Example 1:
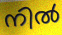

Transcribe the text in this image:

നിൽ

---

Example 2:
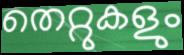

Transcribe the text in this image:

തെറ്റുകളും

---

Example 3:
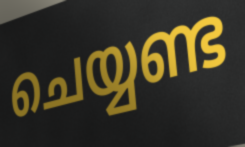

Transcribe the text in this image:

ചെയ്യണ്ട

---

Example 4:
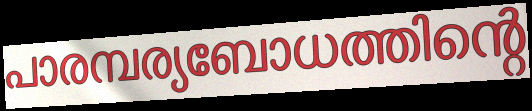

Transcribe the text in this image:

പാരമ്പര്യബോധത്തിന്റെ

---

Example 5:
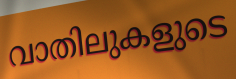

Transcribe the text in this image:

വാതിലുകളുടെ